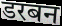
डरबन